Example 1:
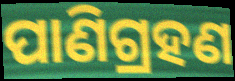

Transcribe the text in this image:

ପାଣିଗ୍ରହଣ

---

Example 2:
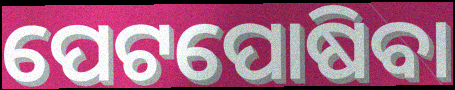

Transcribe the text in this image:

ପେଟପୋଷିବା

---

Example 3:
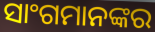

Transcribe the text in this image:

ସାଂଗମାନଙ୍କର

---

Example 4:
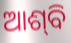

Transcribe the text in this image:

ଆଶ୍‍ବି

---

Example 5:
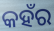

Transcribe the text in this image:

କହଁର